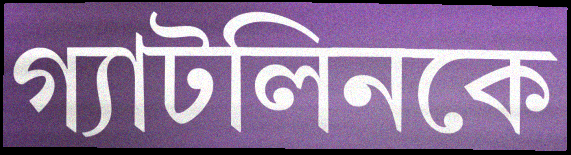
গ্যাটলিনকে